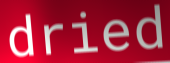
dried